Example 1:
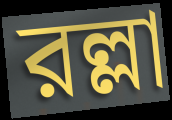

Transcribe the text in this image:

রল্লা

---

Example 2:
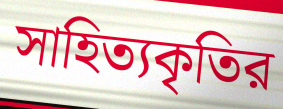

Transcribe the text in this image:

সাহিত্যকৃতির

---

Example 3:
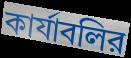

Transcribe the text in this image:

কার্যাবলির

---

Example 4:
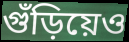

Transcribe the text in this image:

গুঁড়িয়েও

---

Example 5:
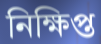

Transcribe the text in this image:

নিক্ষিপ্ত